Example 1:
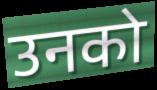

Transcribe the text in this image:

उनको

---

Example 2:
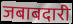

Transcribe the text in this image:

जबाबदारी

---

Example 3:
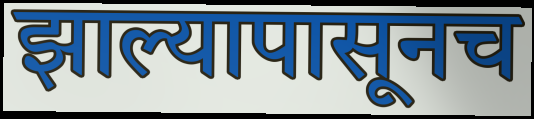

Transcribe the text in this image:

झाल्यापासूनच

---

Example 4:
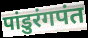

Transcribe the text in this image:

पांडुरंगपंत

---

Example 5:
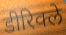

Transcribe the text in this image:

डीरिक्ले